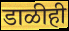
डाळीही